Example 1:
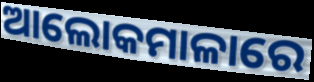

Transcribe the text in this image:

ଆଲୋକମାଳାରେ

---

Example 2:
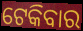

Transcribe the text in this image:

ଟେକିବାର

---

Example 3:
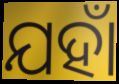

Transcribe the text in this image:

ଯହାଁ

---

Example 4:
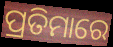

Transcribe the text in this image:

ପ୍ରତିମାରେ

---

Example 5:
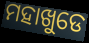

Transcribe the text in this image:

ମହାଖୁଡେ